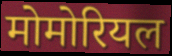
मोमोरियल